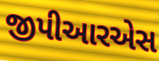
જીપીઆરએસ